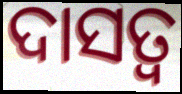
ଦାସତ୍ବ